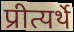
प्रीत्यर्थे